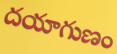
దయాగుణం